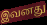
இவனது